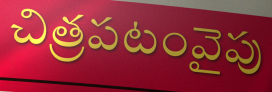
చిత్రపటంవైపు